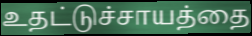
உதட்டுச்சாயத்தை